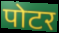
पोटर